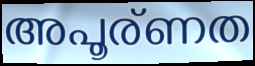
അപൂര്ണത